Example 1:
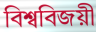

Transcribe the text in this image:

বিশ্ববিজয়ী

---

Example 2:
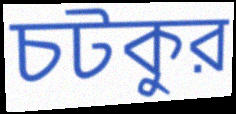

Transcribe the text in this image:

চটকুর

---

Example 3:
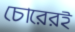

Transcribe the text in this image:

চোরেরই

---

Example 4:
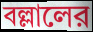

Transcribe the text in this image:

বল্লালের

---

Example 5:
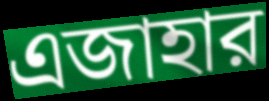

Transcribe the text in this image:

এজাহার